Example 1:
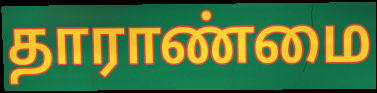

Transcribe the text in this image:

தாராண்மை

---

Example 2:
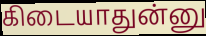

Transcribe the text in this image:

கிடையாதுன்னு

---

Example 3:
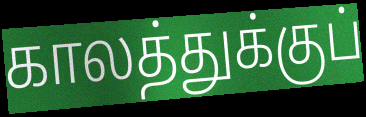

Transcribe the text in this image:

காலத்துக்குப்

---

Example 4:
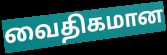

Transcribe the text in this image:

வைதிகமான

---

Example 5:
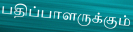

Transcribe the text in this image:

பதிப்பாளருக்கும்